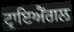
ਟ੍ਰਾਇਐਂਗਲ